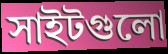
সাইটগুলো